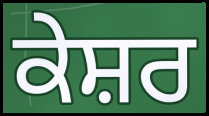
ਕੇਸ਼ਰ